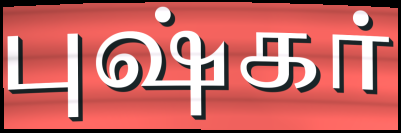
புஷ்கர்